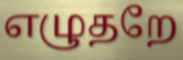
எழுதறே